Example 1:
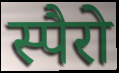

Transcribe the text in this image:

स्पैरो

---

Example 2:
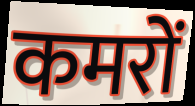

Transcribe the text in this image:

कमरों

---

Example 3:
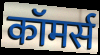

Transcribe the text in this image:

कॉमर्स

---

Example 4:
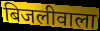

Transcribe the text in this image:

बिजलीवाला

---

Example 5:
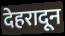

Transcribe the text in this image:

देहरादून